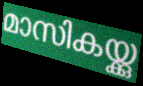
മാസികയ്ക്കു